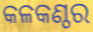
କଳକଣ୍ଠର